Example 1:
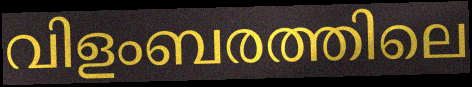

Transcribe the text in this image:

വിളംബരത്തിലെ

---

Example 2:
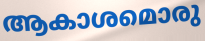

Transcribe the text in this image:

ആകാശമൊരു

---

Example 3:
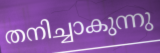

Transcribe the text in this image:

തനിച്ചാകുന്നു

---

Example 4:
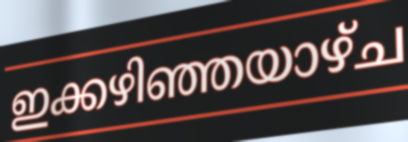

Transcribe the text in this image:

ഇക്കഴിഞ്ഞയാഴ്ച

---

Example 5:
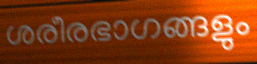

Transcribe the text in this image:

ശരീരഭാഗങ്ങളും